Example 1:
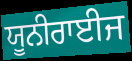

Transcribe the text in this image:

ਯੂਨੀਰਾਈਜ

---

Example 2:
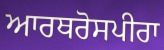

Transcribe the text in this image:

ਆਰਥਰੋਸਪੀਰਾ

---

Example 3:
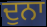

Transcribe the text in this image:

ਦੁਨਾ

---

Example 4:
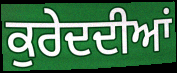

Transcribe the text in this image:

ਕੁਰੇਦਦੀਆਂ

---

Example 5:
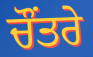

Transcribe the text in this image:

ਚੌਂਤਰੇ